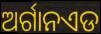
ଅର୍ଗାନଏଡ